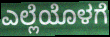
ಎಲ್ಲೆಯೊಳಗೆ